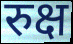
रुक्ष